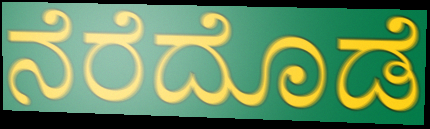
ನೆರೆದೊಡೆ